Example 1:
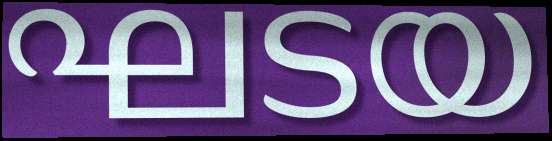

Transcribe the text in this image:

ഘടയ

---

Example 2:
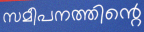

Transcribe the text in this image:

സമീപനത്തിന്റെ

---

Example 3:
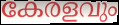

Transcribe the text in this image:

കേരളവും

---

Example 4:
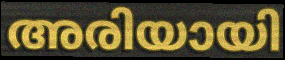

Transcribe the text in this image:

അരിയായി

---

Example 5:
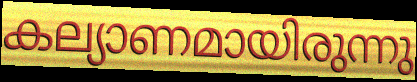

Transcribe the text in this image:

കല്യാണമായിരുന്നു